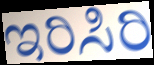
ಇರಿಸಿರಿ